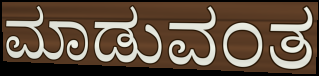
ಮಾಡುವಂತ